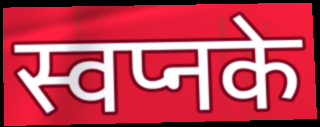
स्वप्नके